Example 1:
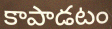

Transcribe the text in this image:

కాపాడటం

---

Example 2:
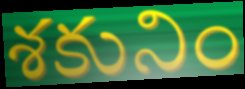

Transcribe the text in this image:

శకునిం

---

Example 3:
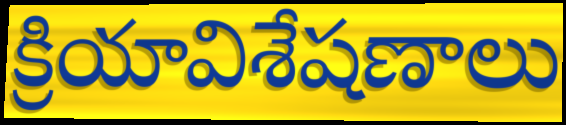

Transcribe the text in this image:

క్రియావిశేషణాలు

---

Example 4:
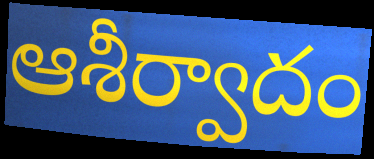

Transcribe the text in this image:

ఆశీర్వాదం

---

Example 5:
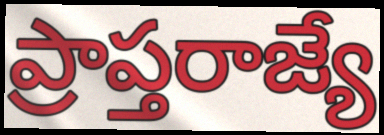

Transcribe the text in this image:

ప్రాప్తరాజ్యే